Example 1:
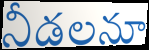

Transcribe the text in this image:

నీడలనూ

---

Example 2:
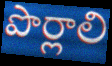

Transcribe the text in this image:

పొర్లాలి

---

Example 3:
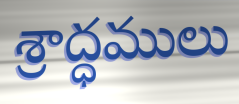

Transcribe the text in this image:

శ్రాద్ధములు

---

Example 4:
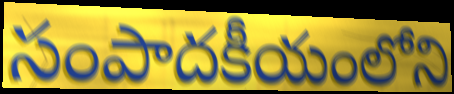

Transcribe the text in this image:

సంపాదకీయంలోని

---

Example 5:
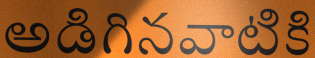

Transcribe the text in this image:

అడిగినవాటికి